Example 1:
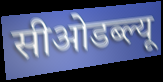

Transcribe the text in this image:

सीओडब्ल्यू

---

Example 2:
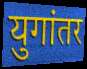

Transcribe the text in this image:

युगांतर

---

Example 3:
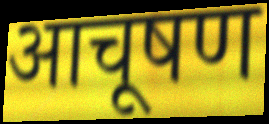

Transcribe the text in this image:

आचूषण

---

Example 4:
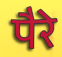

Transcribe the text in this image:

पैरे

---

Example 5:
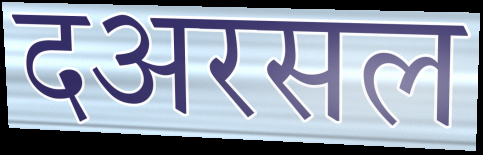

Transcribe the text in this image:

दअरसल